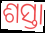
ଶସ୍ତା